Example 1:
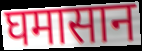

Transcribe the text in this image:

घमासान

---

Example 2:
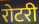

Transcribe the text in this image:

रोटरी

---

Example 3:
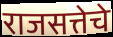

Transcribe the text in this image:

राजसत्तेचे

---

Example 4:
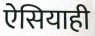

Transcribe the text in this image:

ऐसियाही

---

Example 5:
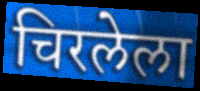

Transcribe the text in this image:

चिरलेला